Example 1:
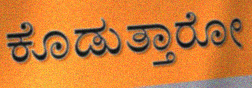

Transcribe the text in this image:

ಕೊಡುತ್ತಾರೋ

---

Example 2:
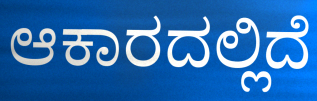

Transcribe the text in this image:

ಆಕಾರದಲ್ಲಿದೆ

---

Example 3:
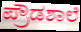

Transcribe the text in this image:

ಪ್ರೌಡಶಾಲೆ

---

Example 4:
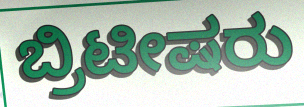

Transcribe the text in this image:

ಬ್ರಿಟೀಷರು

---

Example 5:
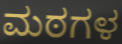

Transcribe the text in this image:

ಮಠಗಳ